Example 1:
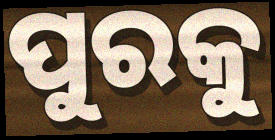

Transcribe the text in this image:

ପୁରକୁ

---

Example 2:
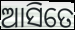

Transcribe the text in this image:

ଆସିତେ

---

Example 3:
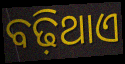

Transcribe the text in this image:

ବଢ଼ିଥାଏ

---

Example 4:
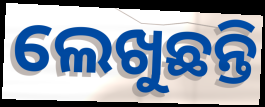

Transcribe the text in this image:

ଲେଖୁଛନ୍ତି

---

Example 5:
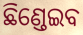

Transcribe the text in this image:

ଛିଣ୍ଡେଇବ